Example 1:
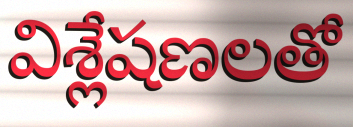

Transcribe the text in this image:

విశ్లేషణలతో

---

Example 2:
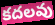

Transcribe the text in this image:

కదలవు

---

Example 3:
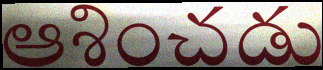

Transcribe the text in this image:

ఆశించడు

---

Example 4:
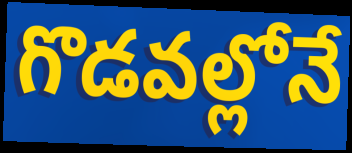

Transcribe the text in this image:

గొడవల్లోనే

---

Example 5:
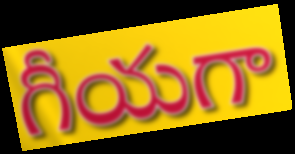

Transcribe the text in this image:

గీయగా